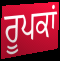
ਰੂਪਕਾਂ